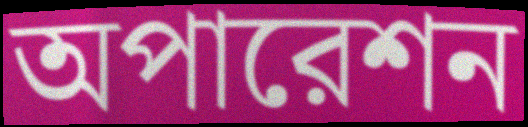
অপারেশন